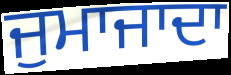
ਜੁਮਾਜਾਦਾ